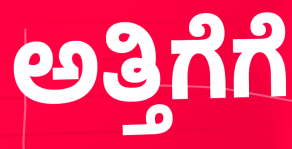
ಅತ್ತಿಗೆಗೆ